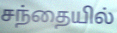
சந்தையில்